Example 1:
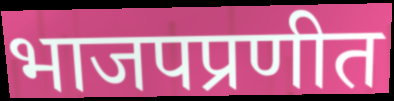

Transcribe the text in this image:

भाजपप्रणीत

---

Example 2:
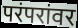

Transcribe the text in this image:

परंपरांवर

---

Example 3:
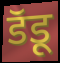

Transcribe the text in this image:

डॅडू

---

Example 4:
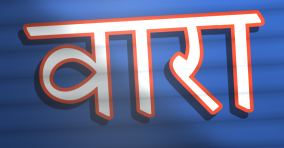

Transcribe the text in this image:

वारा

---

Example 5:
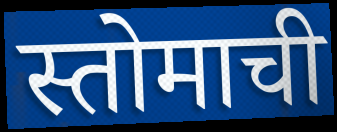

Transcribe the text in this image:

स्तोमाची